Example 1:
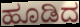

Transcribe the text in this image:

ಹೂಡಿದ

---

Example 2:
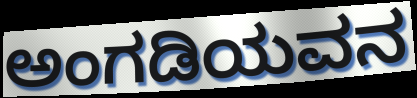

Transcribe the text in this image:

ಅಂಗಡಿಯವನ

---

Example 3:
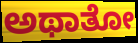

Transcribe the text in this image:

ಅಥಾತೋ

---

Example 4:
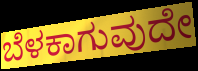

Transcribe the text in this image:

ಬೆಳಕಾಗುವುದೇ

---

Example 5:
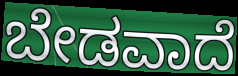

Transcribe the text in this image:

ಬೇಡವಾದೆ